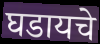
घडायचे